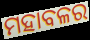
ମହାବଳର